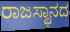
ರಾಜಸ್ಥಾನದ